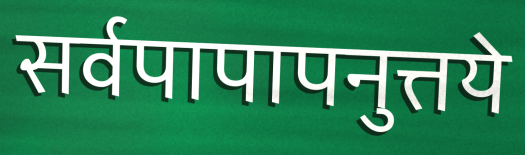
सर्वपापापनुत्तये